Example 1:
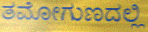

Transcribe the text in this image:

ತಮೋಗುಣದಲ್ಲಿ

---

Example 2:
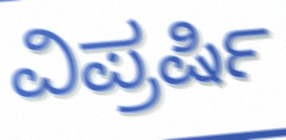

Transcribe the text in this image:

ವಿಪ್ರರ್ಷಿ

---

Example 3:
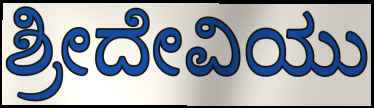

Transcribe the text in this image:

ಶ್ರೀದೇವಿಯು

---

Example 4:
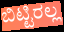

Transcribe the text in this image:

ಬಿಟ್ಟಿರಲ್ಲ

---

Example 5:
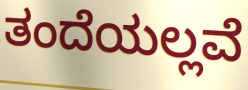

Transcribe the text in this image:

ತಂದೆಯಲ್ಲವೆ